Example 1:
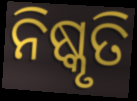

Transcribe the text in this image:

ନିଷ୍କୃତି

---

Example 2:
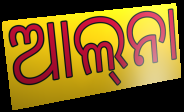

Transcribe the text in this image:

ଆଲ୍‍ନା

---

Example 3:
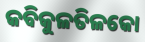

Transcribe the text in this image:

କବିକୁଳତିଳକୋ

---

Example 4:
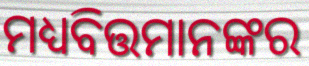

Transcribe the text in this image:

ମଧ୍ୟବିତ୍ତମାନଙ୍କର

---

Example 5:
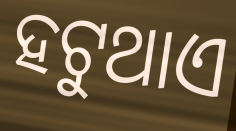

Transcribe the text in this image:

ହଟୁଥାଏ